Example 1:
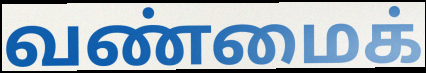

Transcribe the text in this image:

வண்மைக்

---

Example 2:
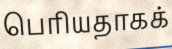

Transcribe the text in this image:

பெரியதாகக்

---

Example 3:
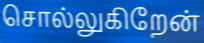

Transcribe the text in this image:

சொல்லுகிறேன்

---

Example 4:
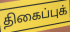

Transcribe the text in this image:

திகைப்புக்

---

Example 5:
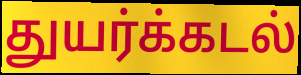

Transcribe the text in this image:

துயர்க்கடல்